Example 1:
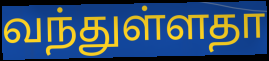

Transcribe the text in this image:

வந்துள்ளதா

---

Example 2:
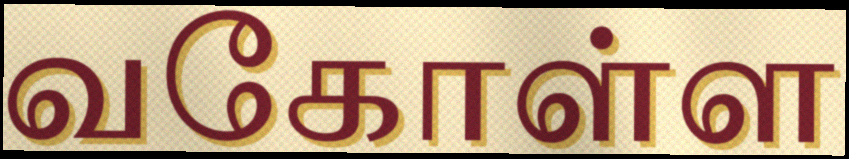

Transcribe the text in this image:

வகோள்ள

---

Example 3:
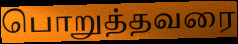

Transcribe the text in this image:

பொறுத்தவரை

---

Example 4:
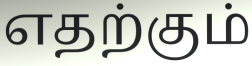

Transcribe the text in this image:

எதற்கும்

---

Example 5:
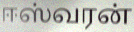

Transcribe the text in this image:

ஈஸ்வரன்